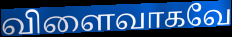
விளைவாகவே